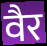
वैर